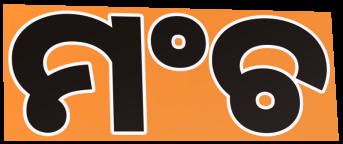
ମଂଚ